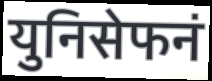
युनिसेफनं